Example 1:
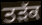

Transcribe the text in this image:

ਤੜੱਕ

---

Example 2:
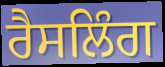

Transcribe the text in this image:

ਰੈਸਲਿੰਗ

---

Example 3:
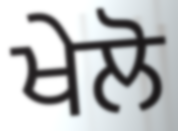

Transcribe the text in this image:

ਖੇਲੋ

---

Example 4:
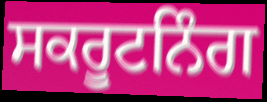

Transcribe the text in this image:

ਸਕਰੂਟਨਿੰਗ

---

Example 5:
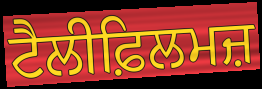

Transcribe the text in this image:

ਟੈਲੀਫ਼ਿਲਮਜ਼